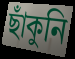
ছাঁকুনি